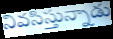
నివసిస్తున్నాడు